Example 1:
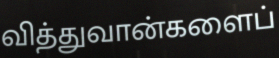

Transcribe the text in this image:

வித்துவான்களைப்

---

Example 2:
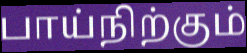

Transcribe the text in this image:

பாய்நிற்கும்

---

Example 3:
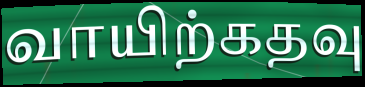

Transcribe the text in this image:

வாயிற்கதவு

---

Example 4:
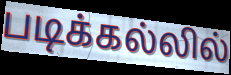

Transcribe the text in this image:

படிக்கல்லில்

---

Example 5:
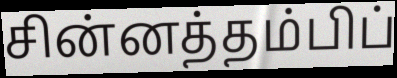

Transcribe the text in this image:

சின்னத்தம்பிப்